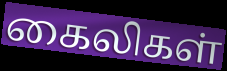
கைலிகள்